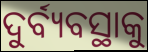
ଦୁର୍ବ୍ୟବସ୍ଥାକୁ